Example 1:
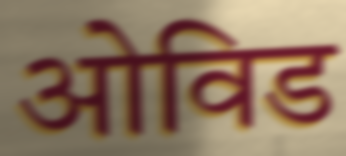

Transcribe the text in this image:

ओविड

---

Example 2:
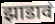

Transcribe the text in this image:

झाडावं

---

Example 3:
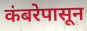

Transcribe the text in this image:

कंबरेपासून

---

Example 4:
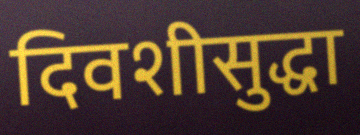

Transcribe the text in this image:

दिवशीसुद्धा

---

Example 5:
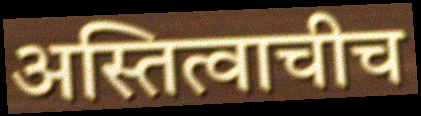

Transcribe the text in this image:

अस्तित्वाचीच